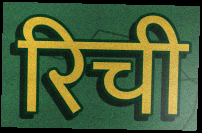
रिची